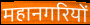
महानगरियों